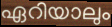
ഏറിയാലും